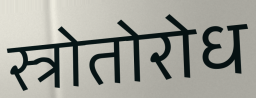
स्त्रोतोरोध